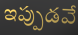
ఇప్పుడవే